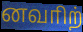
னவரிற்